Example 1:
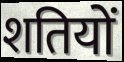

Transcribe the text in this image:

शतियों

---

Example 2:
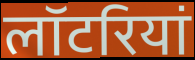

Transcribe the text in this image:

लॉटरियां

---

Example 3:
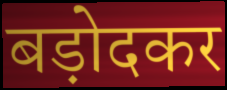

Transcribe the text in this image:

बड़ोदकर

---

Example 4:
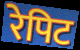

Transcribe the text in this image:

रेपिट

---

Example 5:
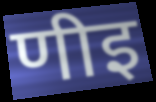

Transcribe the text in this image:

णीइ